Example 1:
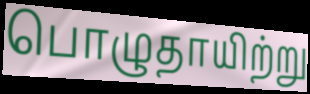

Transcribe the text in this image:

பொழுதாயிற்று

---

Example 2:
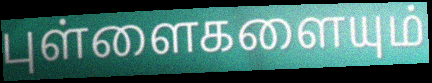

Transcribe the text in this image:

புள்ளைகளையும்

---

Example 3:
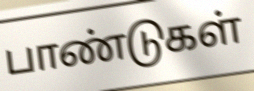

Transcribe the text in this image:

பாண்டுகள்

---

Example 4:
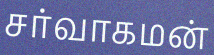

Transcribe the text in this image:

சர்வாகமன்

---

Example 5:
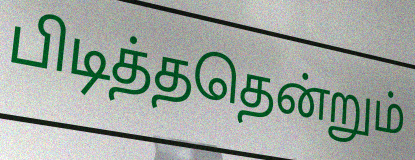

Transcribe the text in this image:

பிடித்ததென்றும்